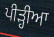
ਪੀੜ੍ਹੀਆ